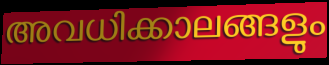
അവധിക്കാലങ്ങളും